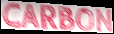
CARBON